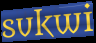
sukwi